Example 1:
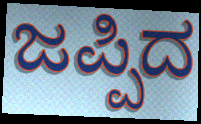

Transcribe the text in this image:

ಜಪ್ಪಿದ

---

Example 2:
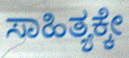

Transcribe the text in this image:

ಸಾಹಿತ್ಯಕ್ಕೇ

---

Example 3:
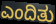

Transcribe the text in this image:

ಎಂದಿತು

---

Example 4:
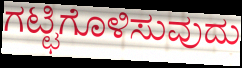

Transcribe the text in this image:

ಗಟ್ಟಿಗೊಳಿಸುವುದು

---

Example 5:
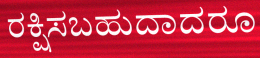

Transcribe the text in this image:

ರಕ್ಷಿಸಬಹುದಾದರೂ